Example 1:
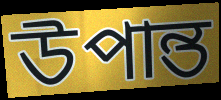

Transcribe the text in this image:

উপান্ত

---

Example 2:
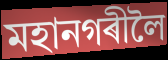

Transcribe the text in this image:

মহানগৰীলৈ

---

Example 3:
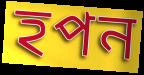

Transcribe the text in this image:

হপন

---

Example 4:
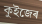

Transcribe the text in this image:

কুইজেৰ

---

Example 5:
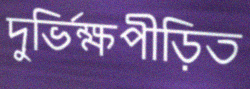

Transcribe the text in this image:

দুৰ্ভিক্ষপীড়িত